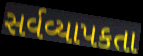
સર્વવ્યાપકતા